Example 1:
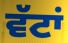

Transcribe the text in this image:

ਵੱਟਾਂ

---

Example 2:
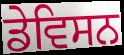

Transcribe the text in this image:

ਡੇਵਿਸਨ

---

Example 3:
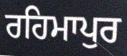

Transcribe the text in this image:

ਰਹਿਮਾਪੁਰ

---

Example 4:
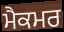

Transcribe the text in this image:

ਮੈਕਮਰ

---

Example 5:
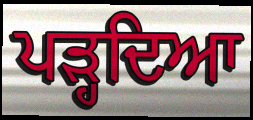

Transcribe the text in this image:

ਪੜ੍ਹਦਿਆ